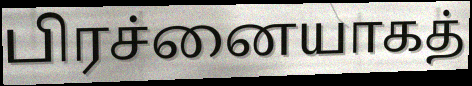
பிரச்னையாகத்